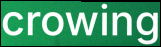
crowing